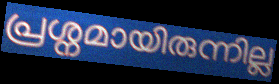
പ്രശ്നമായിരുന്നില്ല